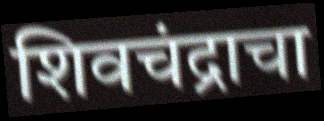
शिवचंद्राचा